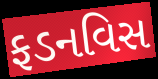
ફડનવિસ